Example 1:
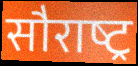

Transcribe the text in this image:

सौराष्ट्र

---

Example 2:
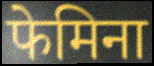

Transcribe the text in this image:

फेमिना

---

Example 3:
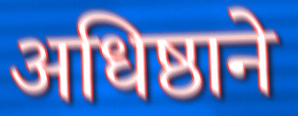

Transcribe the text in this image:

अधिष्ठाने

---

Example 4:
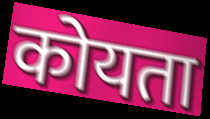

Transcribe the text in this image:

कोयता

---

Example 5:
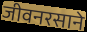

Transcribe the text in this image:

जीवनरसाने